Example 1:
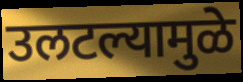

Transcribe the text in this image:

उलटल्यामुळे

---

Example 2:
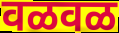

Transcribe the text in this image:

वळवळ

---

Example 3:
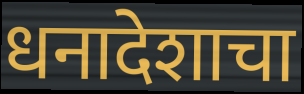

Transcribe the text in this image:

धनादेशाचा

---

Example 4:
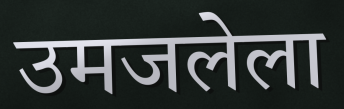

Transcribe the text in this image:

उमजलेला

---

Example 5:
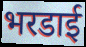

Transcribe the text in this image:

भरडाई